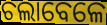
ଚଲାବେଳେ